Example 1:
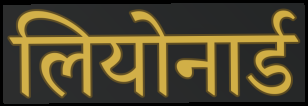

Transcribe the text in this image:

लियोनार्ड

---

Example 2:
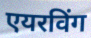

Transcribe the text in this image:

एयरविंग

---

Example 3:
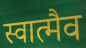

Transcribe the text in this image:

स्वात्मैव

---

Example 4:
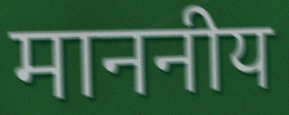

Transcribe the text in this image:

माननीय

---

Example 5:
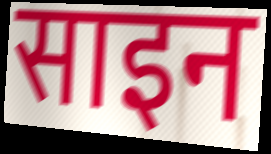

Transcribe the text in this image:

साइन